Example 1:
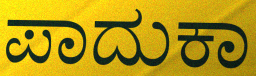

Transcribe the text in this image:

ಪಾದುಕಾ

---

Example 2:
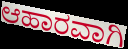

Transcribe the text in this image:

ಆಹಾರವಾಗಿ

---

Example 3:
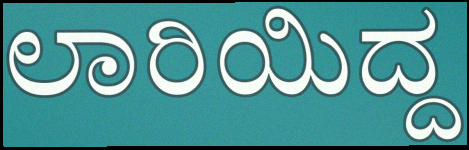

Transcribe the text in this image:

ಲಾರಿಯಿದ್ದ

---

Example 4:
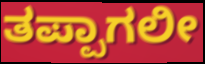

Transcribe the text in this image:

ತಪ್ಪಾಗಲೀ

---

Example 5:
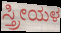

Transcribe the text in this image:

ಸ್ತ್ರೀಯಳ